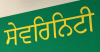
ਸੇਵਰਿਨਿਟੀ